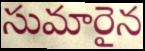
సుమారైన